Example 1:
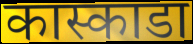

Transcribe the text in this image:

कास्काडा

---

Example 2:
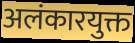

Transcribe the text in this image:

अलंकारयुक्त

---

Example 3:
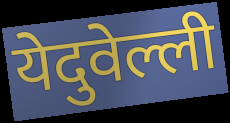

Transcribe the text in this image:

येदुवेल्ली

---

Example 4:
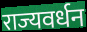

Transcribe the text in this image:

राज्‍यवर्धन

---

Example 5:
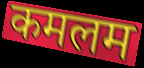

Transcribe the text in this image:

कमलम